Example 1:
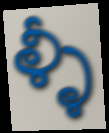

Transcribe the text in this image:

ళ్ళీ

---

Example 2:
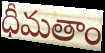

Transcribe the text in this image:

ధీమతాం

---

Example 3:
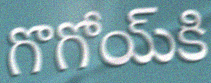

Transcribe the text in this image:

గొగోయ్‌కి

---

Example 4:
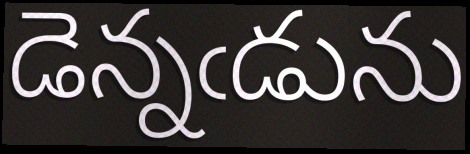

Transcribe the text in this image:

డెన్నఁడును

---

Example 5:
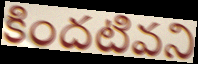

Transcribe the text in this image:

కిందటివని